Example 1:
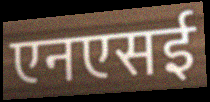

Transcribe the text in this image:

एनएसई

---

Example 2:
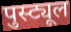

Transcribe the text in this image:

पुस्ट्यूल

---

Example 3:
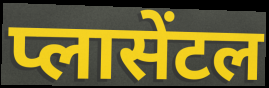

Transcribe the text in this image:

प्लासेंटल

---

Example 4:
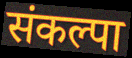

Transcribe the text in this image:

संकल्पा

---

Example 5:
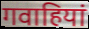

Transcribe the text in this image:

गवाहियां